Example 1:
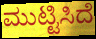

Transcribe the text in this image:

ಮುಟ್ಟಿಸಿದೆ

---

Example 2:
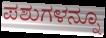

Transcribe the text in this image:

ಪಶುಗಳನ್ನೂ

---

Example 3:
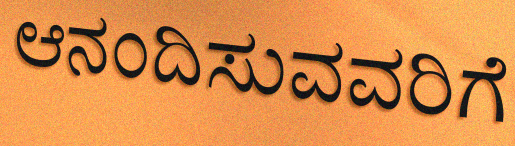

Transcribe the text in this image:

ಆನಂದಿಸುವವರಿಗೆ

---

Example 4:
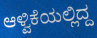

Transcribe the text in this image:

ಆಳ್ವಿಕೆಯಲ್ಲಿದ್ದ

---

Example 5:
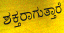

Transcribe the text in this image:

ಶಕ್ತರಾಗುತ್ತಾರೆ